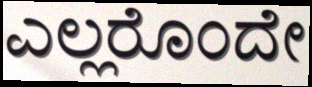
ಎಲ್ಲರೊಂದೇ